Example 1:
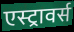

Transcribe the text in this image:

एस्ट्रावर्स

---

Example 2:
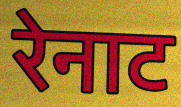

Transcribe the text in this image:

रेनाट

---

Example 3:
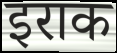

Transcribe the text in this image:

इराक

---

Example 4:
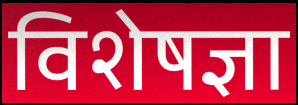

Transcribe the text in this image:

विशेषज्ञा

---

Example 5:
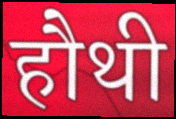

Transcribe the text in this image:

हौथी